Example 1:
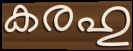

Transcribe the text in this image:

കരഹു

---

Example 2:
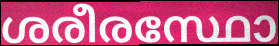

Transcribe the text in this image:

ശരീരസ്ഥോ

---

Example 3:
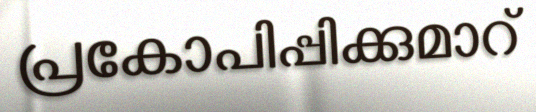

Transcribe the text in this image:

പ്രകോപിപ്പിക്കുമാറ്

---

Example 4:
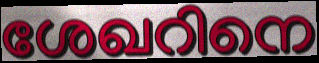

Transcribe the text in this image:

ശേഖറിനെ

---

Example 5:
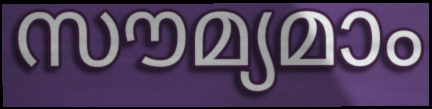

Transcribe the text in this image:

സൗമ്യമാം